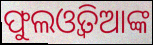
ଫୁଲଓ୍ୱତିଆଙ୍କ